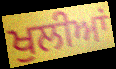
ਖੁਲੀਆਂ